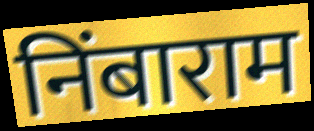
निंबाराम